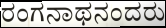
ರಂಗನಾಥನಂದರು